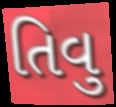
તિવુ